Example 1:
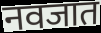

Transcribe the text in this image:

नवजात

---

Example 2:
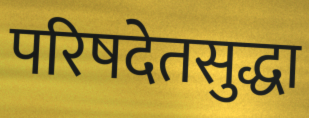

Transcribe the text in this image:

परिषदेतसुद्धा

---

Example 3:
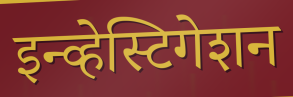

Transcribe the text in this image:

इन्व्हेस्टिगेशन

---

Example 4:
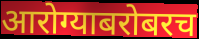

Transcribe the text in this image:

आरोग्याबरोबरच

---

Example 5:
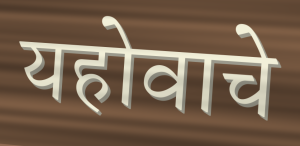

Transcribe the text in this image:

यहोवाचे